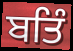
ਬਤਿੰ